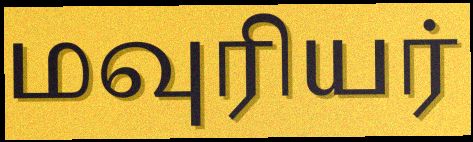
மவுரியர்